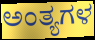
ಅಂತ್ಯಗಳ